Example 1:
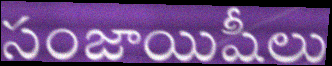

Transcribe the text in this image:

సంజాయిషీలు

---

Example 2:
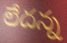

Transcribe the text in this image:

లేదన్న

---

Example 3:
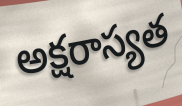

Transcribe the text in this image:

అక్షరాస్యత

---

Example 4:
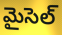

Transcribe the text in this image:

మైసెల్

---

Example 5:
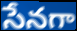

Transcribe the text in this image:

సేనగా